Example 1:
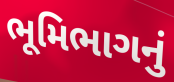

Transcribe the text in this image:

ભૂમિભાગનું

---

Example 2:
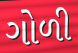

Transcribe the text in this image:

ગોળી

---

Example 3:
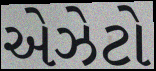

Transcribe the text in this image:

એઝેટો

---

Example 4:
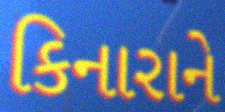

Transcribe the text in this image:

કિનારાને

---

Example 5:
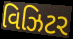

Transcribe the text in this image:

વિઝિટર